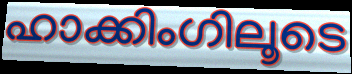
ഹാക്കിംഗിലൂടെ